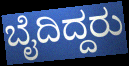
ಬೈದಿದ್ದರು